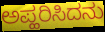
ಅಪ್ಹರಿಸಿದನು